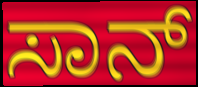
ಸಾನ್